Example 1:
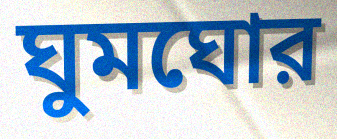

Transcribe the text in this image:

ঘুমঘোর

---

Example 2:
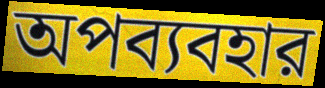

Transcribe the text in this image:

অপব্যবহার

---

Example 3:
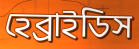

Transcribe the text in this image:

হেব্রাইডিস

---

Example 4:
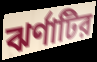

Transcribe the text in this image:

ঝর্ণাটির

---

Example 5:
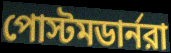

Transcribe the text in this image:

পোস্টমডার্নরা